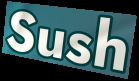
Sush